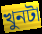
খুনটা